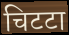
चिटटा